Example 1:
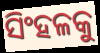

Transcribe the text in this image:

ସିଂହଳକୁ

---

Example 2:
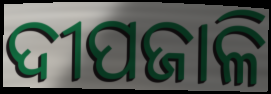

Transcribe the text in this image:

ଦୀପଜାଳି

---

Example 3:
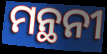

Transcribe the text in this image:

ମନ୍ଥନୀ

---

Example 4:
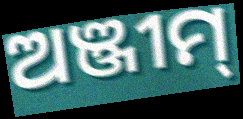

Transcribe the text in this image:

ଅଞ୍ଜୀମ୍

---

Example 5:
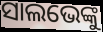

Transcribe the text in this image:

ସାଲଭେଙ୍କୁ